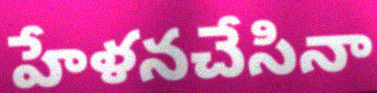
హేళనచేసినా